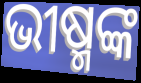
ଭୀଷ୍ମଙ୍କ